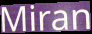
Miran